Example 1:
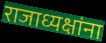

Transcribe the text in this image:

राजाध्यक्षांना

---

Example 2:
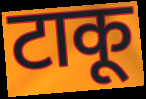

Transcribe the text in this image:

टाकू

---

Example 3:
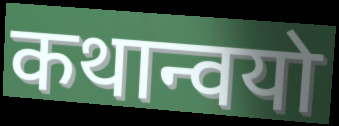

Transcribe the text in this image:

कथान्वयो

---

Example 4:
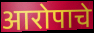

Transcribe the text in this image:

आरोपाचे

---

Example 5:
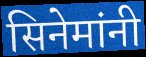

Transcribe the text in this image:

सिनेमांनी